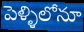
పెళ్ళిలోనూ